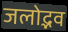
जलोद्भव